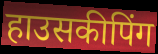
हाउसकीपिंग